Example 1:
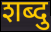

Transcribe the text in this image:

शब्दु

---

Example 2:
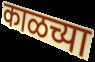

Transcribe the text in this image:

काळच्या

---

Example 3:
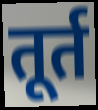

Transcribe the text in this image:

तूर्त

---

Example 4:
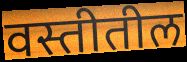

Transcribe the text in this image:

वस्तीतील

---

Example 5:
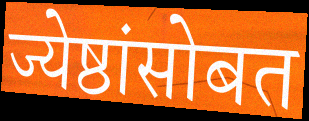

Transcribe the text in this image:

ज्येष्ठांसोबत